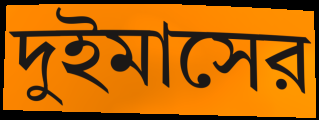
দুইমাসের